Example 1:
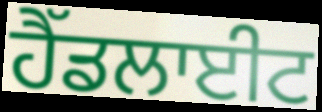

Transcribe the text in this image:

ਹੈੱਡਲਾਈਟ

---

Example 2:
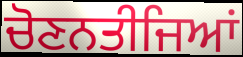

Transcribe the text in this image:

ਚੋਣਨਤੀਜਿਆਂ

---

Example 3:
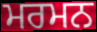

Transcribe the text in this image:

ਮਰਮਨ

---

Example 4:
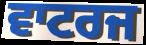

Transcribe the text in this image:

ਵਾਟਰਜ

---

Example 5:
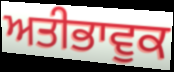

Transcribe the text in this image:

ਅਤੀਭਾਵੁਕ